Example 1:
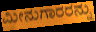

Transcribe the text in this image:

ಮೀನುಗಾರರನ್ನು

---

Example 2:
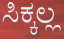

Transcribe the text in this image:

ಸಿಕ್ಕಲ್ಲ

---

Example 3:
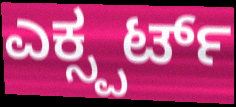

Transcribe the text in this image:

ಎಕ್ಸ್ಪರ್ಟ್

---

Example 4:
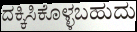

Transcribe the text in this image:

ದಕ್ಕಿಸಿಕೊಳ್ಳಬಹುದು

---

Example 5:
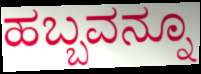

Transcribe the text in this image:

ಹಬ್ಬವನ್ನೂ